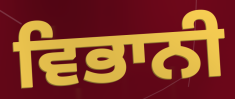
ਵਿਭਾਨੀ